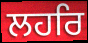
ਲਹਰਿ